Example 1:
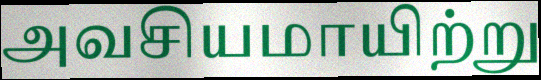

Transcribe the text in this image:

அவசியமாயிற்று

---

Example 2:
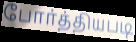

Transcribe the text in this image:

போர்த்தியபடி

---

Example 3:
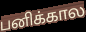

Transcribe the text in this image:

பனிக்கால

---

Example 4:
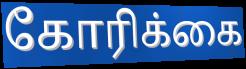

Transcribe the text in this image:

கோரிக்கை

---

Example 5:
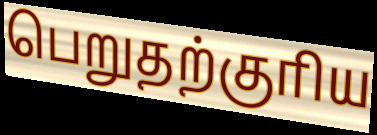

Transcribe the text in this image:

பெறுதற்குரிய